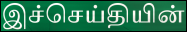
இச்செய்தியின்